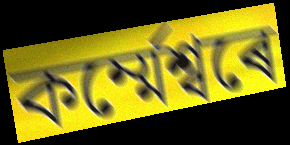
কৰ্ম্মেশ্বৰে